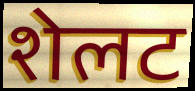
शेलट